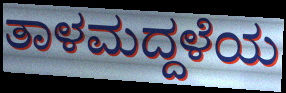
ತಾಳಮದ್ದಳೆಯ